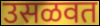
उसळवत